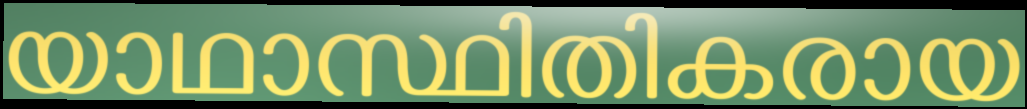
യാഥാസ്ഥിതികരായ